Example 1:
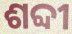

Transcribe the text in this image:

ଶବ୍ଦୀ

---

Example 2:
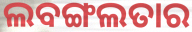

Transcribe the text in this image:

ଲବଙ୍ଗଲତାର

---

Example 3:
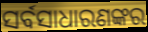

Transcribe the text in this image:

ସର୍ବସାଧାରଣଙ୍କର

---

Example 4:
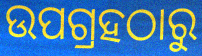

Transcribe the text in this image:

ଉପଗ୍ରହଠାରୁ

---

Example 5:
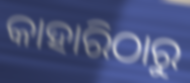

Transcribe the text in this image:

କାହାରିଠାରୁ